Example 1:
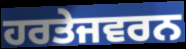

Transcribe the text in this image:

ਹਰਤੇਜਵਰਨ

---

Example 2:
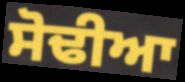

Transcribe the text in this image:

ਸੋਢੀਆ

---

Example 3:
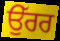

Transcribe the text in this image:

ਉੱਰਰ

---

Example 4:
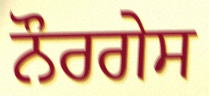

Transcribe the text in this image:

ਨੌਰਗੇਸ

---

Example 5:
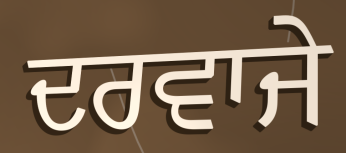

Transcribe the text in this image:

ਦਰਵਾਜੇ